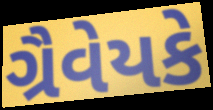
ગ્રૈવેયકે